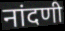
नांदणी